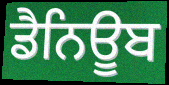
ਡੈਨਿਊਬ